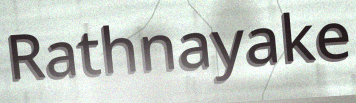
Rathnayake